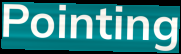
Pointing